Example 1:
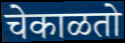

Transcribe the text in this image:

चेकाळतो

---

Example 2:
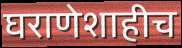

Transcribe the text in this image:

घराणेशाहीच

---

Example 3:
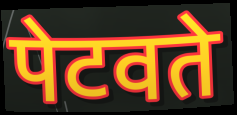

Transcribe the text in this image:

पेटवते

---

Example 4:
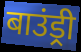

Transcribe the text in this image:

बाउंड्री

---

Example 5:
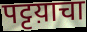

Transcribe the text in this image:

पट्टय़ाचा